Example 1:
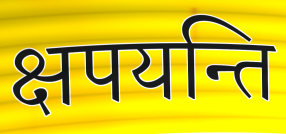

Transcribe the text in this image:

क्षपयन्ति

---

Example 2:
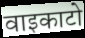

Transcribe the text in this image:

वाइकाटो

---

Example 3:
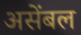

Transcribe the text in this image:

असेंबल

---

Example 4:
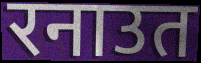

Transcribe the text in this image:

रनाउत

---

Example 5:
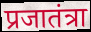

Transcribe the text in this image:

प्रजातंत्रा